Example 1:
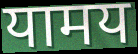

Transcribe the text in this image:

यामय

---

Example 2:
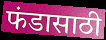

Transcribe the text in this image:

फंडासाठी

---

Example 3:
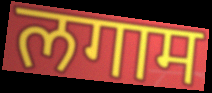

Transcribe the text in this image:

लगाम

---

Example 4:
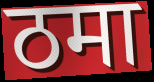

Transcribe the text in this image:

ठमा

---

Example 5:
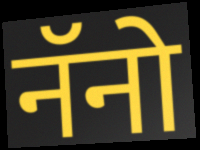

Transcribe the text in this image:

नॅनो